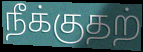
நீக்குதற்